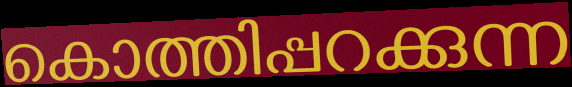
കൊത്തിപ്പറക്കുന്ന